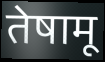
तेषामू